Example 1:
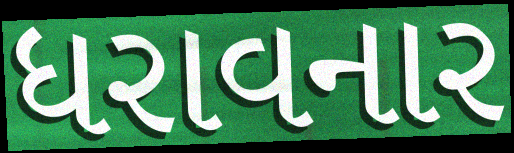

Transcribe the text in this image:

ધરાવનાર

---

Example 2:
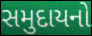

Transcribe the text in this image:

સમુદાયનો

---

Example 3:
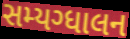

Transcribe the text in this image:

સમ્યગ્ધાલન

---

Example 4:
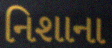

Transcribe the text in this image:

નિશાના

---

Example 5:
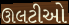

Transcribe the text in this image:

ઊલટીઓ